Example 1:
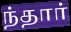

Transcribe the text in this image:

ந்தார்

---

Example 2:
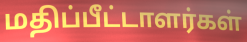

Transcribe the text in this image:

மதிப்பீட்டாளர்கள்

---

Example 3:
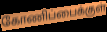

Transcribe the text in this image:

கோணிப்பைக்குள்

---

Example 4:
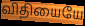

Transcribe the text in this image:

விதியையே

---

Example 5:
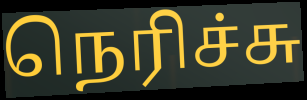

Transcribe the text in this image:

நெரிச்சு